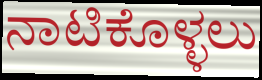
ನಾಟಿಕೊಳ್ಳಲು